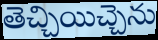
తెచ్చియిచ్చెను